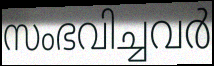
സംഭവിച്ചവർ